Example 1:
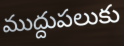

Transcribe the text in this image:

ముద్దుపలుకు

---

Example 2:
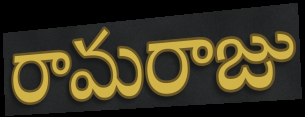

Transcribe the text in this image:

రామరాజు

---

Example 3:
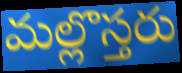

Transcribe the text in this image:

మల్లొస్తరు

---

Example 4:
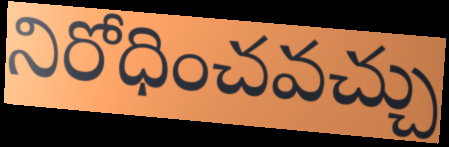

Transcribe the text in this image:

నిరోధించవచ్చు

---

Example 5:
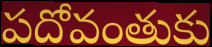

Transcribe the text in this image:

పదోవంతుకు